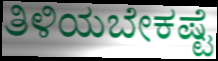
ತಿಳಿಯಬೇಕಷ್ಟೆ